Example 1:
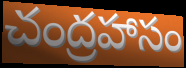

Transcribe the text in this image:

చంద్రహాసం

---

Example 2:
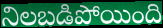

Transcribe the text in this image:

నిలబడిపోయింది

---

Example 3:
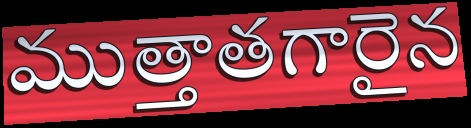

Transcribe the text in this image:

ముత్తాతగారైన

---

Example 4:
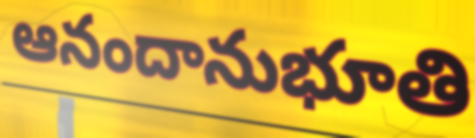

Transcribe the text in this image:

ఆనందానుభూతి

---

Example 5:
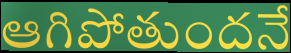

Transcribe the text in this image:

ఆగిపోతుందనే